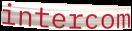
intercom